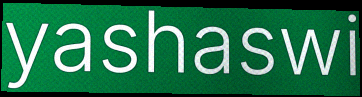
yashaswi